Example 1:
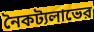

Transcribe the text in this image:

নৈকট্যলাভের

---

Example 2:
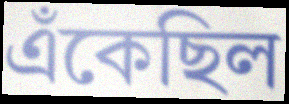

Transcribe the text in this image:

এঁকেছিল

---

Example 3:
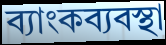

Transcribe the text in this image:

ব্যাংকব্যবস্থা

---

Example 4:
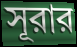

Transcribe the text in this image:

সূরার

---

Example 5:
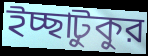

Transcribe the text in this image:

ইচ্ছাটুকুর